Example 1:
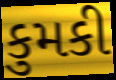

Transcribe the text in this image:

કુમકી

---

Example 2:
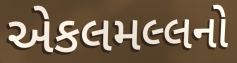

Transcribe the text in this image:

એકલમલ્લનો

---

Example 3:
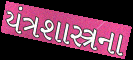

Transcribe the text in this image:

યંત્રશાસ્ત્રના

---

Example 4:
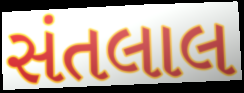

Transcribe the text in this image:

સંતલાલ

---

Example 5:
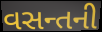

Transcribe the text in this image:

વસન્તની